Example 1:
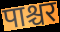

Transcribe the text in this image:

पाश्चर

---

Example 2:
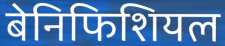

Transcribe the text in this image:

बेनिफिशियल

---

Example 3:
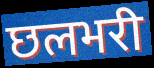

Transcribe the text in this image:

छलभरी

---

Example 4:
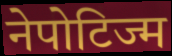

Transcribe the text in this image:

नेपोटिज्‍म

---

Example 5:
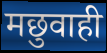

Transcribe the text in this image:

मछुवाही